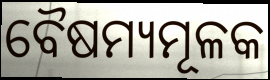
ବୈଷମ୍ୟମୂଳକ